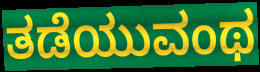
ತಡೆಯುವಂಥ